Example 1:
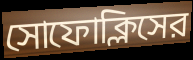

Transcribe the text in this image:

সোফোক্লিসের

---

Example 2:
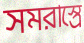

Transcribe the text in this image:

সমরাস্ত্রে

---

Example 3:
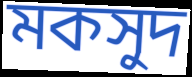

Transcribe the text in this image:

মকসুদ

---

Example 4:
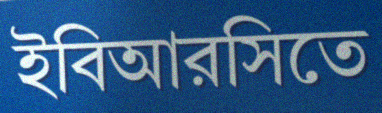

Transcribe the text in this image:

ইবিআরসিতে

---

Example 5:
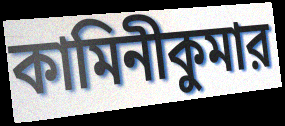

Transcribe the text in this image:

কামিনীকুমার